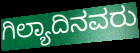
ಗಿಲ್ಯಾದಿನವರು